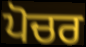
ਪੋਚਰ